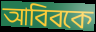
আবিবকে